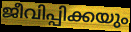
ജീവിപ്പിക്കയും